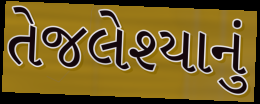
તેજલેશ્યાનું